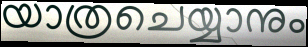
യാത്രചെയ്യാനും